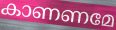
കാണണമേ